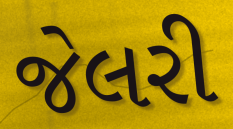
જેલરી